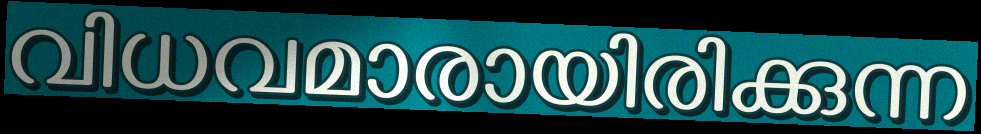
വിധവമാരായിരിക്കുന്ന